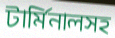
টার্মিনালসহ